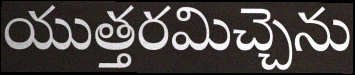
యుత్తరమిచ్చెను